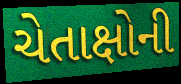
ચેતાક્ષોની